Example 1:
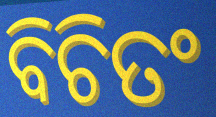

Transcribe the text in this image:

ବିଚିତଂ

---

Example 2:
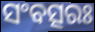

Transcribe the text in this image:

ସଂବତ୍ସରଃ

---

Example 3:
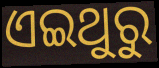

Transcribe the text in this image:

ଏଇଥୁରୁ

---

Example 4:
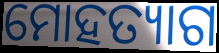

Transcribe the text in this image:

ମୋହତ୍ୟାଗ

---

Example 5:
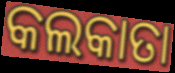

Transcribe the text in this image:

କଲକାତା